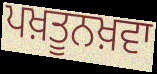
ਪਖ਼ਤੂਨਖ਼ਵਾ